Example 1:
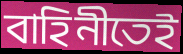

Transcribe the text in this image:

বাহিনীতেই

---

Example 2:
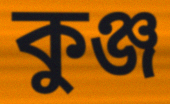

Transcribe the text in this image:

কুঞ্জ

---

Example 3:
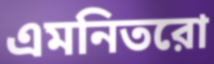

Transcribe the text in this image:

এমনিতরো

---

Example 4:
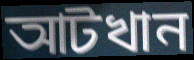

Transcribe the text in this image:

আটখান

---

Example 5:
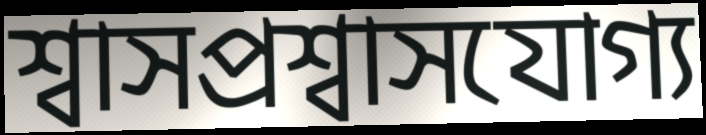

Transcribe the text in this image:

শ্বাসপ্রশ্বাসযোগ্য